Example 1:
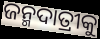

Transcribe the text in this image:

ଜନ୍ମଦାତ୍ରୀକୁ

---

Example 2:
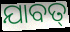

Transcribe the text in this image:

ଯାବତ୍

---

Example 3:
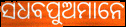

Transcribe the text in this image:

ସଧବପୁଅମାନେ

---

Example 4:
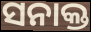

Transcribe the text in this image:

ସନାକ୍ତ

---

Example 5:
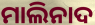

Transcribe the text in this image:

ମାଲିନାଦ